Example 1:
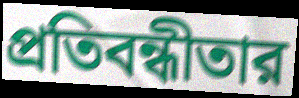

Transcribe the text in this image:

প্রতিবন্ধীতার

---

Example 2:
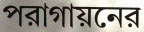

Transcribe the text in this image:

পরাগায়নের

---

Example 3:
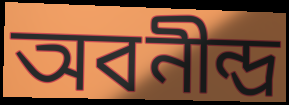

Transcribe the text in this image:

অবনীন্দ্র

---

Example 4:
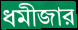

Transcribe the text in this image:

ধমীজার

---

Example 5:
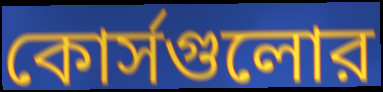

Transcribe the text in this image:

কোর্সগুলোর